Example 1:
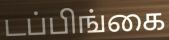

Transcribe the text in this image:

டப்பிங்கை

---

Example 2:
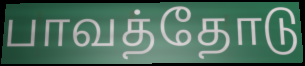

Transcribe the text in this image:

பாவத்தோடு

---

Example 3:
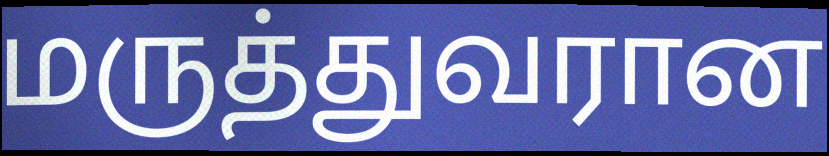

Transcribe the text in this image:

மருத்துவரான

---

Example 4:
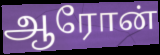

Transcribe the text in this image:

ஆரோன்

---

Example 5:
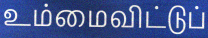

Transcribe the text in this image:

உம்மைவிட்டுப்